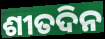
ଶୀତଦିନ